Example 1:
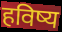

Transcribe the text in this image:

हविष्‍य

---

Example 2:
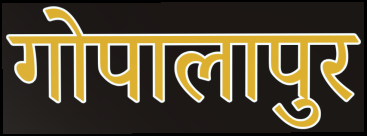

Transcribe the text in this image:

गोपालापुर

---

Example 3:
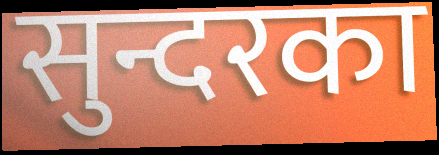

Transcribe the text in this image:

सुन्दरका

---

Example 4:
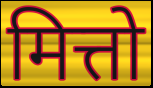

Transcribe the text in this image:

मित्तो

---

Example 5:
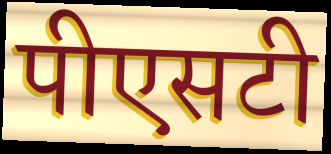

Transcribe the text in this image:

पीएसटी